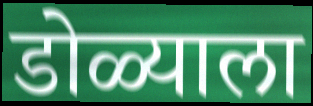
डोळ्याला